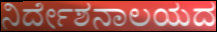
ನಿರ್ದೇಶನಾಲಯದ